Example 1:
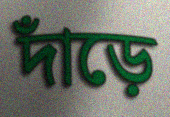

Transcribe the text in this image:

দাঁড়ে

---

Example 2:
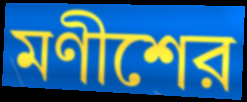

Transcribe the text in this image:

মণীশের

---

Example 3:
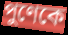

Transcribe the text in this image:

পুণেকে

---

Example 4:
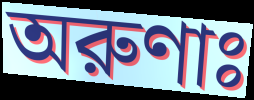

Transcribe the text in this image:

অরুণাঃ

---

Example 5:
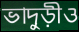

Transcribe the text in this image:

ভাদুড়ীও